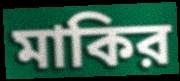
মাকির